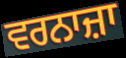
ਵਰਨਾਜ਼ਾ